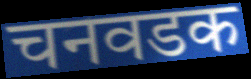
चनवडक